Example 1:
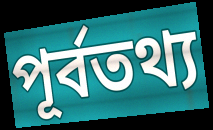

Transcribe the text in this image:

পূর্বতথ্য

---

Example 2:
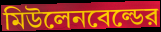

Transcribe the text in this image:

মিউলেনবেল্ডের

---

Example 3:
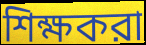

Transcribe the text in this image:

শিক্ষকরা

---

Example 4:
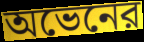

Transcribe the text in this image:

অভেনের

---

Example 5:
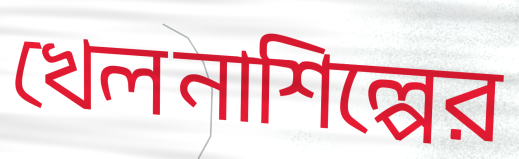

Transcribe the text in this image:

খেলনাশিল্পের